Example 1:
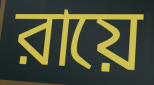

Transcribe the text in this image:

রায়ে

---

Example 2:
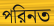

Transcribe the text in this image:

পরিনত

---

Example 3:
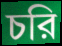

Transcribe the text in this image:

চরি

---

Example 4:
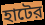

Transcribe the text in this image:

হাটের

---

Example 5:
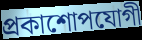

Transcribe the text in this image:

প্রকাশোপযোগী